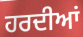
ਹਰਦੀਆਂ